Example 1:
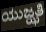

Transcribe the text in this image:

ಯುಜ್ಝತಿ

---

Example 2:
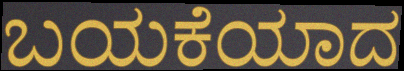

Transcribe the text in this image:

ಬಯಕೆಯಾದ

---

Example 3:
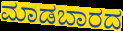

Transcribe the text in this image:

ಮಾಡಬಾರದ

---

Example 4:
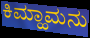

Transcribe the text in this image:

ಕಿಮ್ಹಾಮನು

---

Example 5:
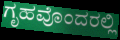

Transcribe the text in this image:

ಗೃಹವೊಂದರಲ್ಲಿ